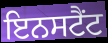
ਇਨਸਟੈਂਟ